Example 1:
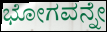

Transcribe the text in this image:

ಭೋಗವನ್ನೇ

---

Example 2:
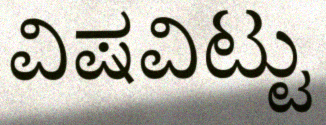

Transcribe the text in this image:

ವಿಷವಿಟ್ಟು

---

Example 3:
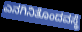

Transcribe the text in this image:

ಎನಗಿನಿತೊಂದವಸ್ಥೆ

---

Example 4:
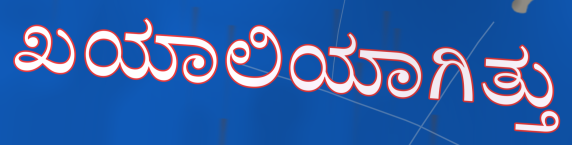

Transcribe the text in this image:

ಖಯಾಲಿಯಾಗಿತ್ತು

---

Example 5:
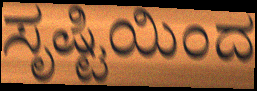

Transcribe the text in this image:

ಸೃಷ್ಟಿಯಿಂದ